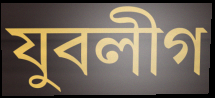
যুবলীগ